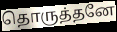
தொருத்தனே